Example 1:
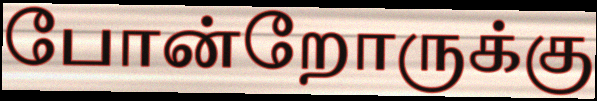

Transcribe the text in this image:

போன்றோருக்கு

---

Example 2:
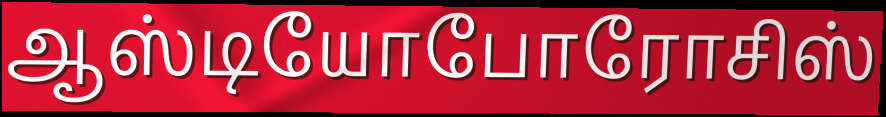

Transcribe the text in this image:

ஆஸ்டியோபோரோசிஸ்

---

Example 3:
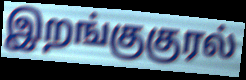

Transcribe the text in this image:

இறங்குகுரல்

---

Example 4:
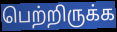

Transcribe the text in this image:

பெற்றிருக்க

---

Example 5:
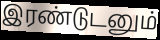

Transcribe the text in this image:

இரண்டுடனும்